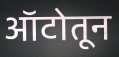
ऑटोतून